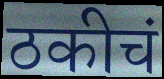
ठकीचं